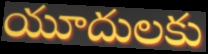
యూదులకు